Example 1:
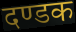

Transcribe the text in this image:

दण्डक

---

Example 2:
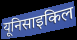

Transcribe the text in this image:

यूनिसाइकिल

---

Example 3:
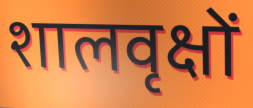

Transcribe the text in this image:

शालवृक्षों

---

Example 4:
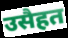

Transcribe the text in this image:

उसैहत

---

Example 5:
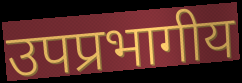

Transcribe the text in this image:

उपप्रभागीय